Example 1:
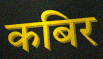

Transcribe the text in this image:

कबिर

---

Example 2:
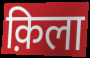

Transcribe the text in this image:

क़िला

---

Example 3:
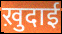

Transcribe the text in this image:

ख़ुदाई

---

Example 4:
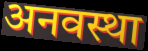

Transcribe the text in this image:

अनवस्था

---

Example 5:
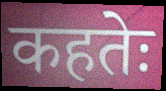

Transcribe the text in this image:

कहतेः